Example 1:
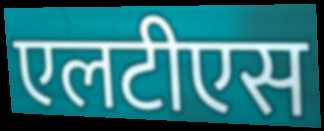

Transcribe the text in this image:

एलटीएस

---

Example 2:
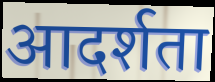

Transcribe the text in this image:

आदर्शता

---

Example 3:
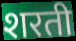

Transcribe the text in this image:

शरती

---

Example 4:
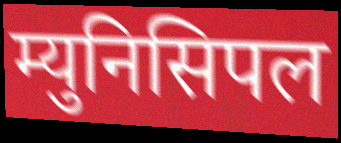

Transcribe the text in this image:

म्युनिसिपल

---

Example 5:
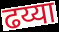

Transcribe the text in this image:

ढय्या